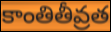
కాంతితీవ్రత